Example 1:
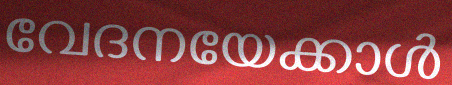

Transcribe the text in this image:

വേദനയേക്കാൾ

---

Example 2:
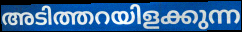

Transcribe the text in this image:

അടിത്തറയിളക്കുന്ന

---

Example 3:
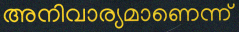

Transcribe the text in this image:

അനിവാര്യമാണെന്ന്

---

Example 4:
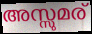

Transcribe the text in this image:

അസ്സുമര്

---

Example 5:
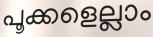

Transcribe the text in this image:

പൂക്കളെല്ലാം